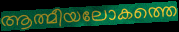
ആത്മീയലോകത്തെ